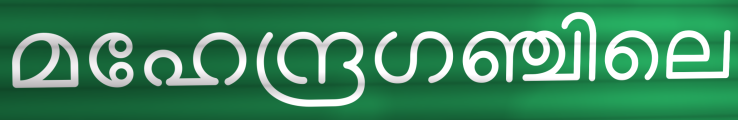
മഹേന്ദ്രഗഞ്ചിലെ